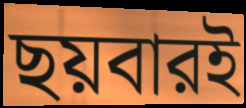
ছয়বারই